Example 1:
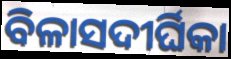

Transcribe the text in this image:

ବିଳାସଦୀର୍ଘିକା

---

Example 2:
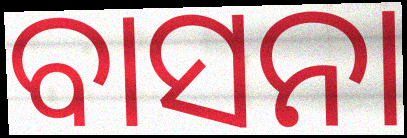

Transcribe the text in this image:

ବାସନା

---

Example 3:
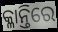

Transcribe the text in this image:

କ୍ଳାନ୍ତିରେ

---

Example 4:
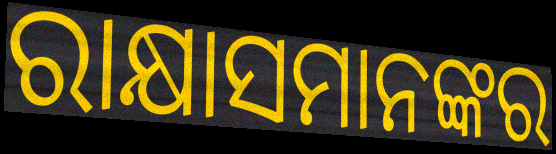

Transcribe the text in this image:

ରାକ୍ଷାସମାନଙ୍କର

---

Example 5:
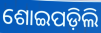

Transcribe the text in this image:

ଶୋଇପଡ଼ିଲି